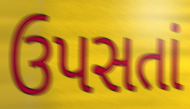
ઉપસતાં